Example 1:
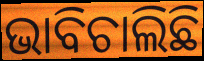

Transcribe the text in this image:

ଭାବିଚାଲିଛି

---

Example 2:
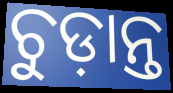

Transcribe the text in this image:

ଚୁଡ଼ାନ୍ତ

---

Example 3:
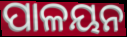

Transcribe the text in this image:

ପାଳୟନ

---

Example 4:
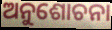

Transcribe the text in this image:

ଅନୁଶୋଚନା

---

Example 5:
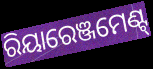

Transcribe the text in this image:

ରିୟାରେଞ୍ଜମେଣ୍ଟ୍